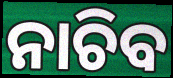
ନାଚିବ